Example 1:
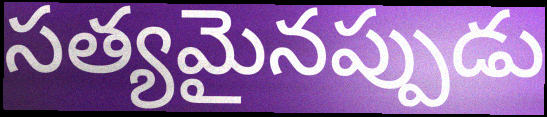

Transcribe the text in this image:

సత్యమైనప్పుడు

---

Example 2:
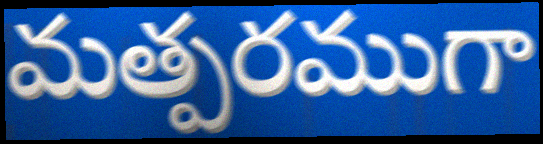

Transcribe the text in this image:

మత్పరముగా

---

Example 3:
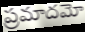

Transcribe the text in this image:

ప్రమాదమో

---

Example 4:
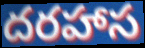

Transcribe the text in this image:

దరహాస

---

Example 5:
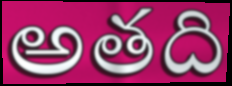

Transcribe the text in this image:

అతది